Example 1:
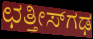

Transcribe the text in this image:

ಛತ್ತೀಸ್‌ಗಢ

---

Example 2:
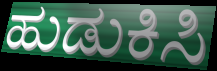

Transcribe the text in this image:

ಹುಡುಕಿಸಿ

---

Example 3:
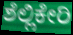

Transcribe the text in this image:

ಶೆಲ್ಲಿಕೇರಿ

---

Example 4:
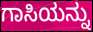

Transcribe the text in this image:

ಗಾಸಿಯನ್ನು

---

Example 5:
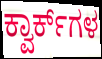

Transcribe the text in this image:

ಕ್ವಾರ್ಕ್‌ಗಳ